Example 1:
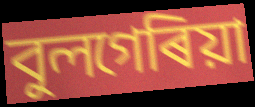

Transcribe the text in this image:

বুলগেৰিয়া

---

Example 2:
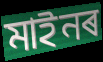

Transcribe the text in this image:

মাইনৰ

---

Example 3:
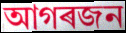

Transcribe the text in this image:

আগৰজন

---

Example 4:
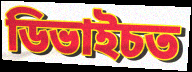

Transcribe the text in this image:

ডিভাইচত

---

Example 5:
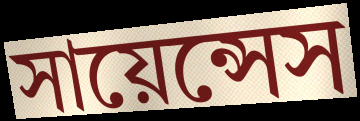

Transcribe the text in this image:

সায়েন্সেস